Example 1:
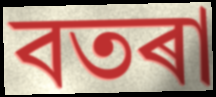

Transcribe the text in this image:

বতৰা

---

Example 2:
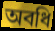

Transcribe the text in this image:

অবধি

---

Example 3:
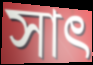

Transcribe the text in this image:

সাৎ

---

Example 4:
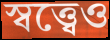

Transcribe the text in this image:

স্বত্ত্বেও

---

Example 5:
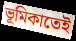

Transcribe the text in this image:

ভূমিকাতেই